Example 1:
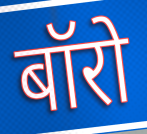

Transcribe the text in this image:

बॉरो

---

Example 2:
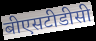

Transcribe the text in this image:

बीएसटीडीसी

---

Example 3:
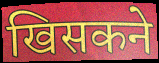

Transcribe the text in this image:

खिसकने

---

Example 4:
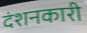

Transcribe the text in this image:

दंशनकारी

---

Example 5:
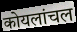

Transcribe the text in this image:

कोयलांचल